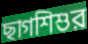
ছাগশিশুর